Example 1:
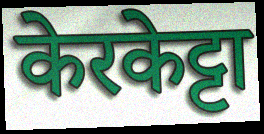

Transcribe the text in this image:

केरकेट्टा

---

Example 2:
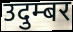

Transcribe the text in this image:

उदुम्बर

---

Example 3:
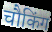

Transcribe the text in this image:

चौकिंग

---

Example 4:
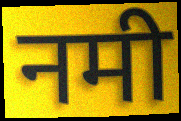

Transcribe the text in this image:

नमी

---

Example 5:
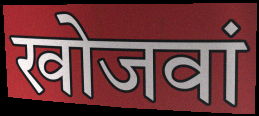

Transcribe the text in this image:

खोजवां